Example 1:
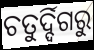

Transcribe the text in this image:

ଚତୁର୍ଦ୍ଦିଗରୁ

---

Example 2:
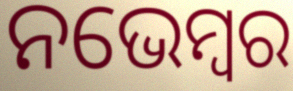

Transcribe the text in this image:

ନଭେମ୍ବର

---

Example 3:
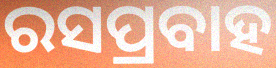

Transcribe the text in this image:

ରସପ୍ରବାହ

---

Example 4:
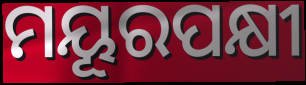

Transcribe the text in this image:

ମୟୂରପକ୍ଷୀ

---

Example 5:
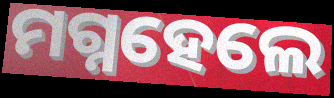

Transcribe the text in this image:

ମଗ୍ନହେଲେ